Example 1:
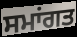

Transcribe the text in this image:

ਸਮਾਂਗਤ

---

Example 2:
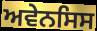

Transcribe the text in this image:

ਅਵੇਨਸਿਸ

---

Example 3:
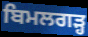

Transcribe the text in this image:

ਬਿਮਲਗੜ੍ਹ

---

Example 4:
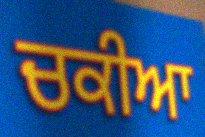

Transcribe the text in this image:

ਚਕੀਆ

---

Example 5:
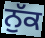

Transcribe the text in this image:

ਨੁੱਕ